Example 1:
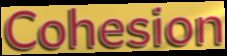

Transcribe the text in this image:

Cohesion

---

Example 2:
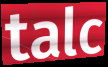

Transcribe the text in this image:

talc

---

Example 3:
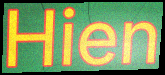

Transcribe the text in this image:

Hien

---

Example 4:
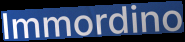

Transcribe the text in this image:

Immordino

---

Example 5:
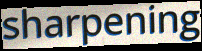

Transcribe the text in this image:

sharpening